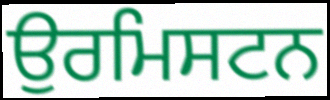
ਉਰਮਿਸਟਨ